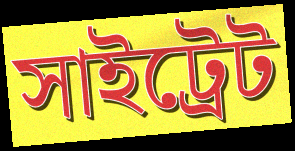
সাইট্রেট